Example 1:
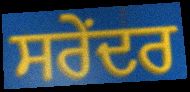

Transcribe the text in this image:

ਸਰੇਂਦਰ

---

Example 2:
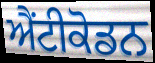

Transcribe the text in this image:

ਐਂਟੀਕੋਡਨ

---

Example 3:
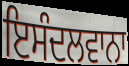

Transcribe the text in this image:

ਇਸੰਦਲਵਾਨਾ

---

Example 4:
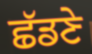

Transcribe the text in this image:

ਛੱਡਣੇ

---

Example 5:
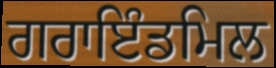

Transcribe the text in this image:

ਗਰਾਇੰਡਮਿਲ